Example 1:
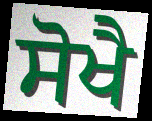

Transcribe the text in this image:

ਸੋਖੈ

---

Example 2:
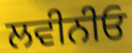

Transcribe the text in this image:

ਲਵੀਨੀਓ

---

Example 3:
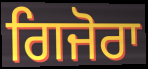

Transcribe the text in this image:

ਗਿਜੋਰਾ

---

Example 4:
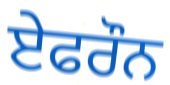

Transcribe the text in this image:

ਏਫਰੌਨ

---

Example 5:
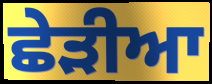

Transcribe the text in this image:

ਛੇੜੀਆ